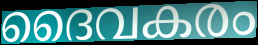
ദൈവകരം